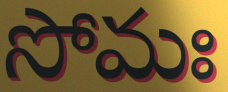
సోమః